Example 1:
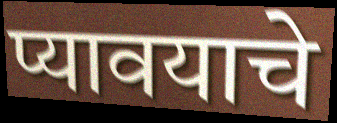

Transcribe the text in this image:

प्यावयाचे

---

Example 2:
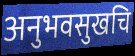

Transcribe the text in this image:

अनुभवसुखचि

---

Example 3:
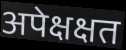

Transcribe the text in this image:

अपेक्षक्षत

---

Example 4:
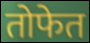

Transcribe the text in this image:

तोफेत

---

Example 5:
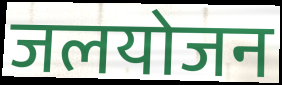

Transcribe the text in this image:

जलयोजन